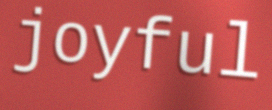
joyful